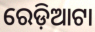
ରେଡ଼ିଆଟା